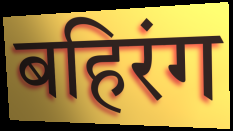
बहिरंग